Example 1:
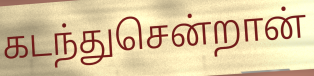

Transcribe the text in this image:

கடந்துசென்றான்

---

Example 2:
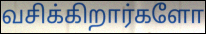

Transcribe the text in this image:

வசிக்கிறார்களோ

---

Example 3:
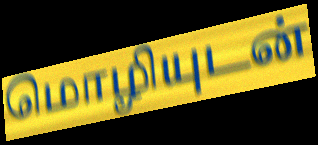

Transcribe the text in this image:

மொழியுடன்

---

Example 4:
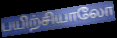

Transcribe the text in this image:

பயிற்சியாலோ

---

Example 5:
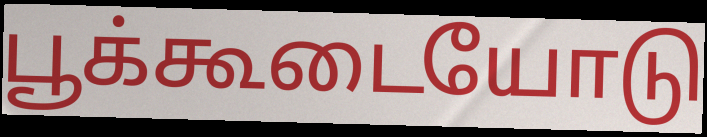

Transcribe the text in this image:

பூக்கூடையோடு